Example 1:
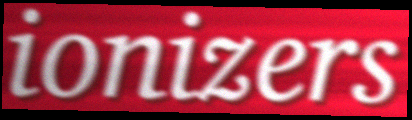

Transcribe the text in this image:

ionizers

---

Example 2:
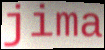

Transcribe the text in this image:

jima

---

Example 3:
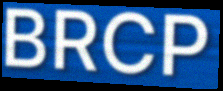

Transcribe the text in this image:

BRCP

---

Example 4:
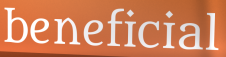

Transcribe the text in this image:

beneficial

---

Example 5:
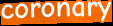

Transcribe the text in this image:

coronary